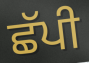
ਛੱਪੀ